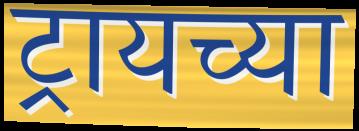
ट्रायच्या